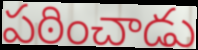
పఠించాడు